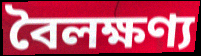
বৈলক্ষণ্য